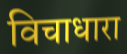
विचाधारा